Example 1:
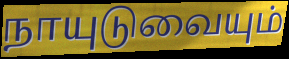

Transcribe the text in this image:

நாயுடுவையும்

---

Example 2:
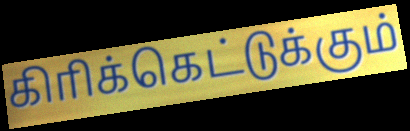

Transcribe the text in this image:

கிரிக்கெட்டுக்கும்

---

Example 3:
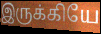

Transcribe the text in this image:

இருக்கியே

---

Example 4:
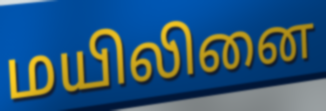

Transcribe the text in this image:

மயிலினை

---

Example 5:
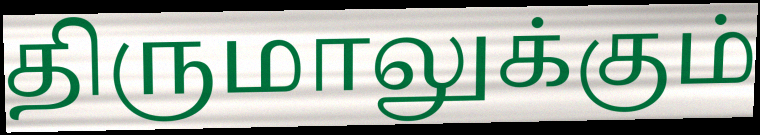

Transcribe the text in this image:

திருமாலுக்கும்